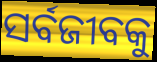
ସର୍ବଜୀବକୁ